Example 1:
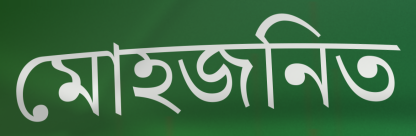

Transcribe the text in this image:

মোহজনিত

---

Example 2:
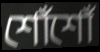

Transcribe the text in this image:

শোঁশোঁ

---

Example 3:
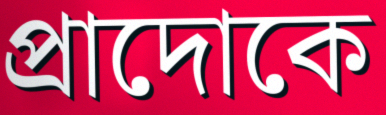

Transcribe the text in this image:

প্রাদোকে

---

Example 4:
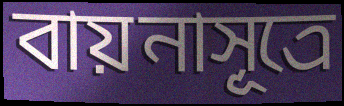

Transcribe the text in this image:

বায়নাসূত্রে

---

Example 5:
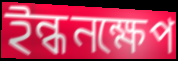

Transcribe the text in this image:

ইন্ধনক্ষেপ